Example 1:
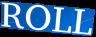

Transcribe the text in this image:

ROLL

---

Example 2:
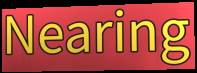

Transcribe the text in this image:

Nearing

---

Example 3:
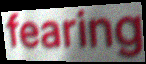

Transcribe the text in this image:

fearing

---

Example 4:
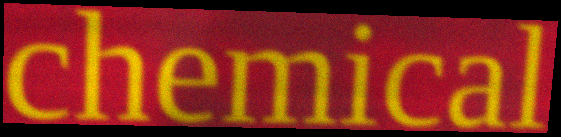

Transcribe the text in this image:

chemical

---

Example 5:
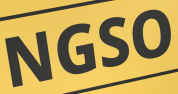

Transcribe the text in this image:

NGSO